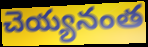
చెయ్యనంత